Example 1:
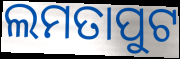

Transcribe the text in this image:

ଲମତାପୁଟ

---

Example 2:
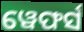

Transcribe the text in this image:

ୱେଫର୍ସ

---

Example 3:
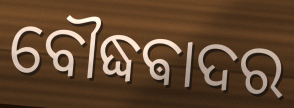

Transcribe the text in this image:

ବୌଦ୍ଧଵାଦର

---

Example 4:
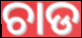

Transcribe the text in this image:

ଚାଡ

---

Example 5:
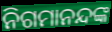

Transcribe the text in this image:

ନିଗମାନନ୍ଦଙ୍କ